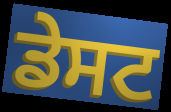
ਡੇਸਟ